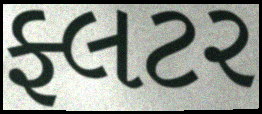
ફ્લટર